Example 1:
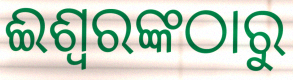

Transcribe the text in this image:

ଈଶ୍ଵରଙ୍କଠାରୁ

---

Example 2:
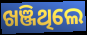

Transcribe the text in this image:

ଖଞ୍ଜିଥିଲେ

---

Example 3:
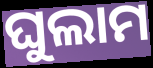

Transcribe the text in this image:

ଘୁଲାମ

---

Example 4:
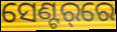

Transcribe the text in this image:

ସେଣ୍ଟର୍‌ରେ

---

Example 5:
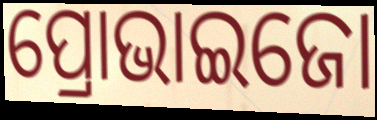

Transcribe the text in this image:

ପ୍ରୋଭାଇଜୋ